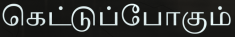
கெட்டுப்போகும்